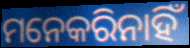
ମନେକରିନାହିଁ